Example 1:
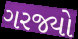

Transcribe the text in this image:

ગરજ્યો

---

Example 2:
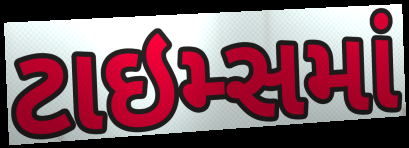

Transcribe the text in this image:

ટાઇમ્સમાં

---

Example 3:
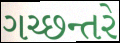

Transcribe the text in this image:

ગચ્છન્તરે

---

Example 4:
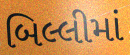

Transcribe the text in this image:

બિલ્લીમાં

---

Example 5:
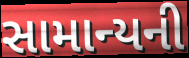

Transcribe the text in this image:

સામાન્યની